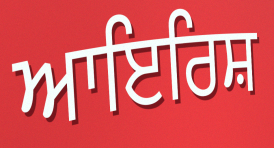
ਆਇਰਿਸ਼